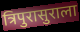
त्रिपुरासुराला